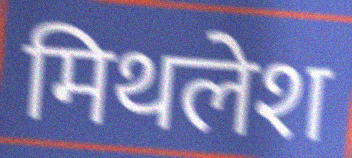
मिथलेश